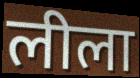
लीला